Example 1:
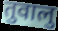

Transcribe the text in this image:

तुवालु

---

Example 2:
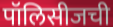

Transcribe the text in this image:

पॉलिसीजची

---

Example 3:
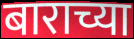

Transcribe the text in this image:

बाराच्या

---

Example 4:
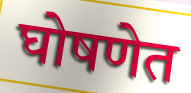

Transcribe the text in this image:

घोषणेत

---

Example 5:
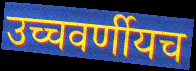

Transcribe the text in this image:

उच्चवर्णीयच